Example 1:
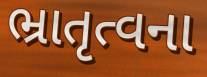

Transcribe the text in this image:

ભ્રાતૃત્વના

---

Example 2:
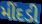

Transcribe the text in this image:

મીંદડી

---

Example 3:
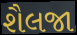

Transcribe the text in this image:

શૈલજા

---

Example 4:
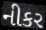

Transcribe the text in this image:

નીકર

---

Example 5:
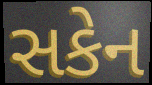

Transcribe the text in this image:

સકેન